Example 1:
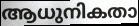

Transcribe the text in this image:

ആധുനികതാ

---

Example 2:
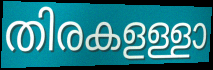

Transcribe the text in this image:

തിരകളള്ളാ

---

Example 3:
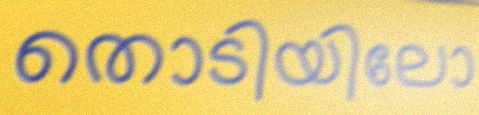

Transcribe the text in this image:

തൊടിയിലോ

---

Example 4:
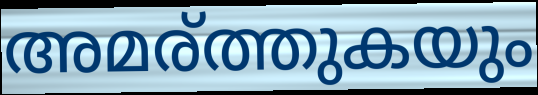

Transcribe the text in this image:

അമര്ത്തുകയും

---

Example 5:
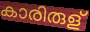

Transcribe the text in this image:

കാരിരുള്